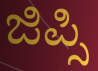
ಜಿಪ್ಸಿ